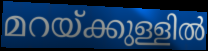
മറയ്ക്കുള്ളിൽ